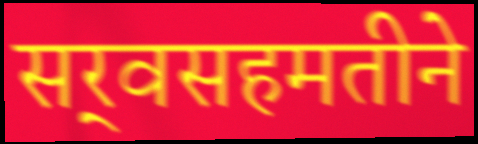
सर्वसहमतीने